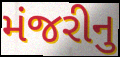
મંજરીનુ